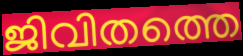
ജിവിതത്തെ